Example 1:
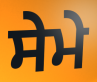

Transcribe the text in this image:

ਸੇਮੇ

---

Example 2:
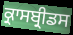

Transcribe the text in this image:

ਕ੍ਰਾਸਬ੍ਰੀਡਸ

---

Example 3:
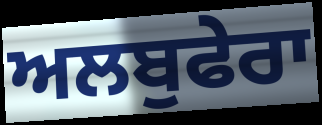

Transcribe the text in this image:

ਅਲਬੁਫੇਰਾ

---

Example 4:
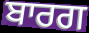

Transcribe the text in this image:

ਬਾਰਗ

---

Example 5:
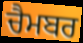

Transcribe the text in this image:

ਚੈਮਬਰ